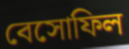
বেসোফিল